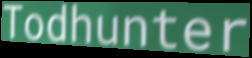
Todhunter